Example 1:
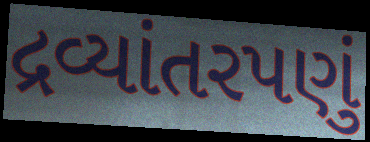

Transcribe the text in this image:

દ્રવ્યાંતરપણું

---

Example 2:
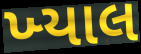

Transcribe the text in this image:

ખ્‍યાલ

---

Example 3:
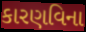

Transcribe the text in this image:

કારણવિના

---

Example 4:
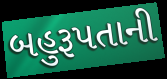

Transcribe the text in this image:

બહુરૂપતાની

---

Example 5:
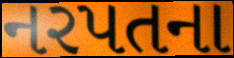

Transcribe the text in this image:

નરપતના